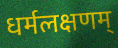
धर्मलक्षणम्